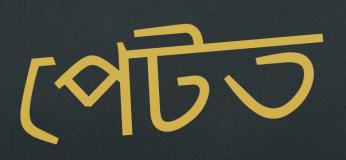
পেটত